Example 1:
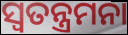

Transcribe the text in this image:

ସ୍ୱତନ୍ତ୍ରମନା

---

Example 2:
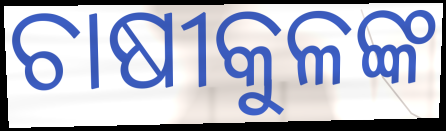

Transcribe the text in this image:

ଚାଷୀକୁଳଙ୍କ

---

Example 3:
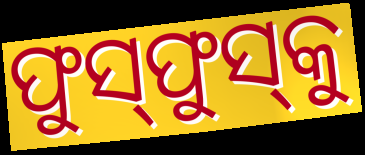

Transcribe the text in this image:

ଫୁସ୍‌ଫୁସ୍‌କୁ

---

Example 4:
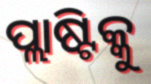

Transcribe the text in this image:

ପ୍ଲାଷ୍ଟିକ୍କୁ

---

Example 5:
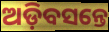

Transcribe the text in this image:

ଅଡ଼ିବସନ୍ତେ